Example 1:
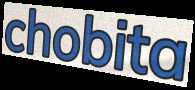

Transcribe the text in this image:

chobita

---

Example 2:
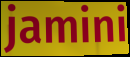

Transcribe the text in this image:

jamini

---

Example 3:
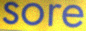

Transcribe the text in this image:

sore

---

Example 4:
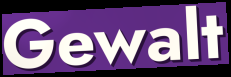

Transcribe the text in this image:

Gewalt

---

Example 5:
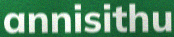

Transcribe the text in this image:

annisithu